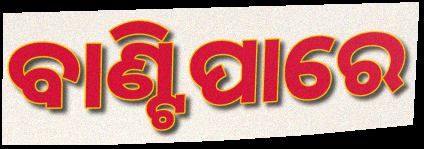
ବାଣ୍ଟିପାରେ